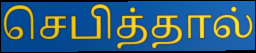
செபித்தால்